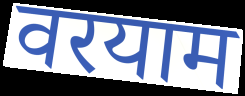
वरयाम